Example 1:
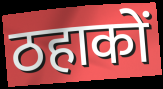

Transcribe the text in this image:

ठहाकों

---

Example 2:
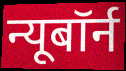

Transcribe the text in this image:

न्यूबॉर्न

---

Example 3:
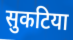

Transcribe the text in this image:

सुकटिया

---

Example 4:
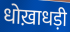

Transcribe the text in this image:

धोख़ाधड़ी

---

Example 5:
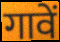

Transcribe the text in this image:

गावें